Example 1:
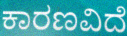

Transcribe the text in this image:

ಕಾರಣವಿದೆ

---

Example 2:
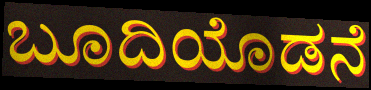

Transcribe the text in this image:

ಬೂದಿಯೊಡನೆ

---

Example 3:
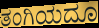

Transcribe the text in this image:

ತಂಗಿಯದೂ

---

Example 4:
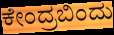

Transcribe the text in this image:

ಕೇಂದ್ರಬಿಂದು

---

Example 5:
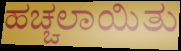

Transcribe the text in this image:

ಹಚ್ಚಲಾಯಿತು